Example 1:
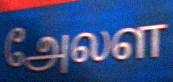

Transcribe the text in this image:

அேலள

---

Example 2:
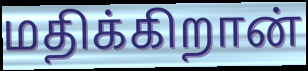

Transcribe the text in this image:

மதிக்கிறான்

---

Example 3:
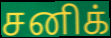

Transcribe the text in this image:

சனிக்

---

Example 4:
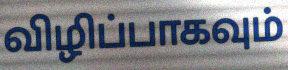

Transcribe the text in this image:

விழிப்பாகவும்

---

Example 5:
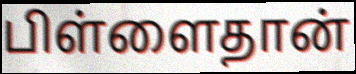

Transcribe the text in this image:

பிள்ளைதான்